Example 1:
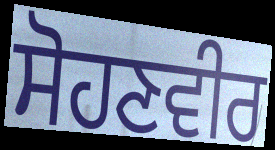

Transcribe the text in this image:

ਸੋਹਣਵੀਰ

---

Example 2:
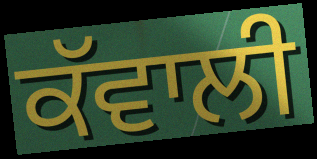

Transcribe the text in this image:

ਕੱਵਾਲੀ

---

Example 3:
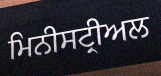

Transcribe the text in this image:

ਮਿਨੀਸਟ੍ਰੀਅਲ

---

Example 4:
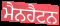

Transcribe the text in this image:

ਮੈਨਹੈਟਨ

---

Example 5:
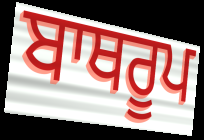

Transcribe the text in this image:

ਬਾਥਰੂਪ